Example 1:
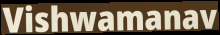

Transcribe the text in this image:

Vishwamanav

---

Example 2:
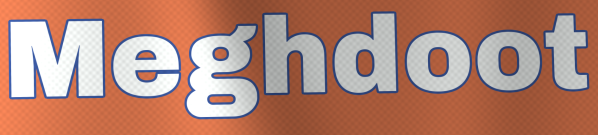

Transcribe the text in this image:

Meghdoot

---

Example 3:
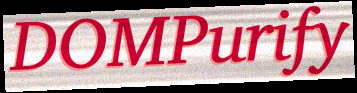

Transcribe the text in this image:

DOMPurify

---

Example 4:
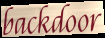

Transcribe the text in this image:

backdoor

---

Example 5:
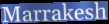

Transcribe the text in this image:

Marrakesh